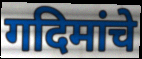
गदिमांचे